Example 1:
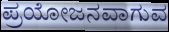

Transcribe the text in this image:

ಪ್ರಯೋಜನವಾಗುವ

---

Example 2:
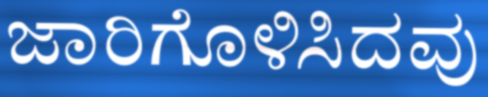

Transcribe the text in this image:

ಜಾರಿಗೊಳಿಸಿದವು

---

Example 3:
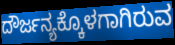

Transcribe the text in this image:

ದೌರ್ಜನ್ಯಕ್ಕೊಳಗಾಗಿರುವ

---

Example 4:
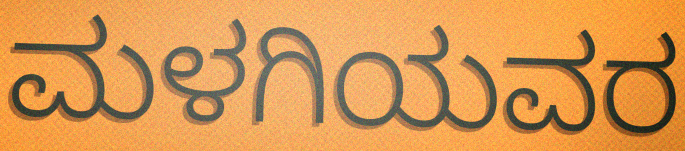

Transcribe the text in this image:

ಮಳಗಿಯವರ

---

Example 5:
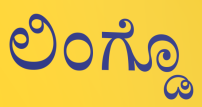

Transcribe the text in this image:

ಲಿಂಗ್ಡೊ